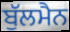
ਬੁੱਲਮੈਨ